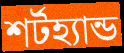
শর্টহ্যান্ড